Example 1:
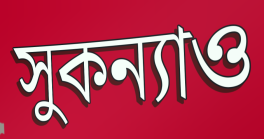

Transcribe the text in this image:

সুকন্যাও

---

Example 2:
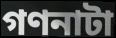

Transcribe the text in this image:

গণনাটা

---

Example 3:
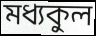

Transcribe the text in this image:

মধ্যকুল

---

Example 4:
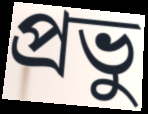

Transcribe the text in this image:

প্রভু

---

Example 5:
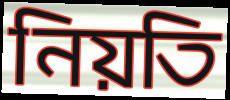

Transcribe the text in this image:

নিয়তি